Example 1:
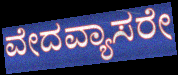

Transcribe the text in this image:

ವೇದವ್ಯಾಸರೇ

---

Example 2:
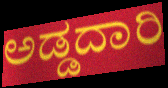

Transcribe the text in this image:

ಅಡ್ಡದಾರಿ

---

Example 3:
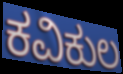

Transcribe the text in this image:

ಕವಿಕುಲ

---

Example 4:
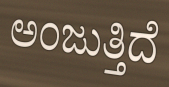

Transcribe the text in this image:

ಅಂಜುತ್ತಿದೆ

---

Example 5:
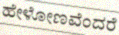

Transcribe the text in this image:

ಹೇಳೋಣವೆಂದರೆ